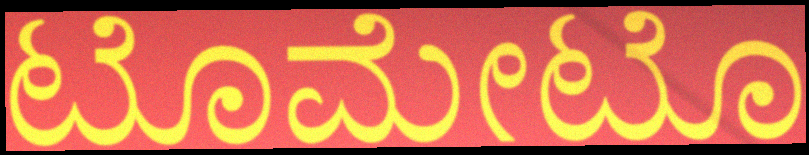
ಟೊಮೇಟೊ